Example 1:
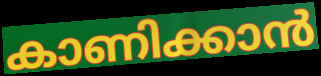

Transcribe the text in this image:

കാണിക്കാൻ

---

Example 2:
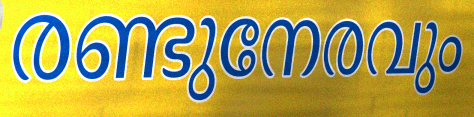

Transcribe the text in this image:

രണ്ടുനേരവും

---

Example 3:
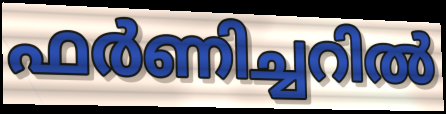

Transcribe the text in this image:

ഫർണിച്ചറിൽ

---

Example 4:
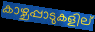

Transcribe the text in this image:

കാഴ്ചപ്പാടുകളില്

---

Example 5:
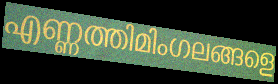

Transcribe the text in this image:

എണ്ണത്തിമിംഗലങ്ങളെ